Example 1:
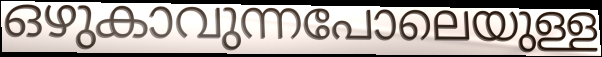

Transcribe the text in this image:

ഒഴുകാവുന്നപോലെയുള്ള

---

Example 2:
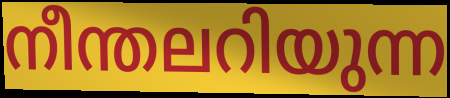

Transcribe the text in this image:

നീന്തലറിയുന്ന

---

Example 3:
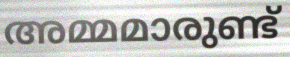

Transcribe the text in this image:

അമ്മമാരുണ്ട്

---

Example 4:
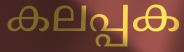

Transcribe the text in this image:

കലപ്പക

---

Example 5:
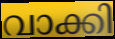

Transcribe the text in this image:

വാക്കി